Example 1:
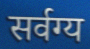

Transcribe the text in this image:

सर्वग्य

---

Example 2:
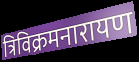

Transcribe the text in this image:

त्रिविक्रमनारायण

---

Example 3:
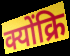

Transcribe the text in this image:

क्योंक्रि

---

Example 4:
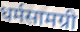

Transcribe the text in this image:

धर्मसामग्री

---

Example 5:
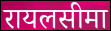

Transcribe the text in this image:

रायलसीमा